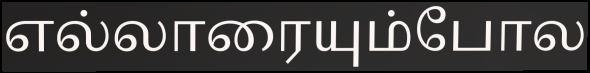
எல்லாரையும்போல